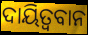
ଦାୟିତ୍ଵବାନ